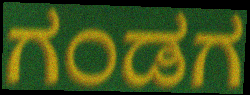
ಗಂಡಗ